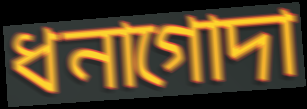
ধনাগোদা